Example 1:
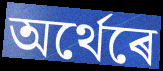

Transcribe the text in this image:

অৰ্থেৰে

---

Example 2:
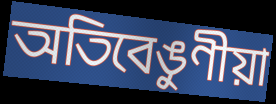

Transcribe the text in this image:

অতিবেঙুণীয়া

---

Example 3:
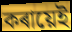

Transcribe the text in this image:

কৰায়েই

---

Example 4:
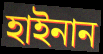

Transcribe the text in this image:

হাইনান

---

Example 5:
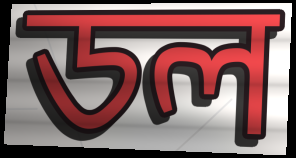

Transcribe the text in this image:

ডল